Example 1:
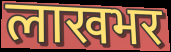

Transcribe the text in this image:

लाखभर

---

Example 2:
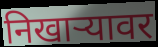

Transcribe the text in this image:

निखार्‍यावर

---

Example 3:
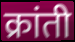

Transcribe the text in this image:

क्रांती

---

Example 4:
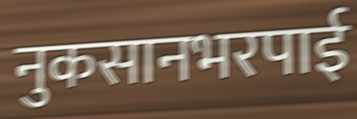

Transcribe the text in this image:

नुकसानभरपाई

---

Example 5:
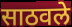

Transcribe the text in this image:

साठवले